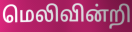
மெலிவின்றி